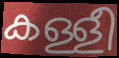
കള്ളീ